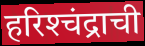
हरिश्‍चंद्राची